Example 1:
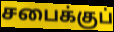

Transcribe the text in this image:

சபைக்குப்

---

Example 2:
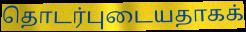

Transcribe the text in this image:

தொடர்புடையதாகக்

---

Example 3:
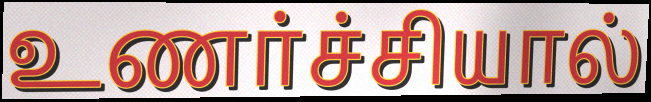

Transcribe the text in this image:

உணர்ச்சியால்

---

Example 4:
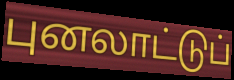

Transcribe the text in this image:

புனலாட்டுப்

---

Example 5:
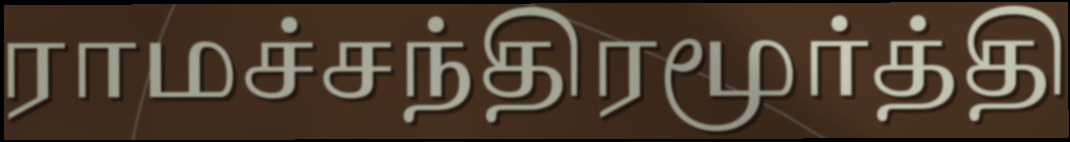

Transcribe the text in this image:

ராமச்சந்திரமூர்த்தி